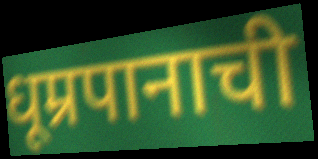
धूम्रपानाची